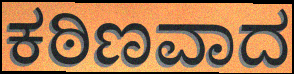
ಕಠಿಣವಾದ